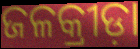
ଜଳକ୍ରୀଡ଼ା